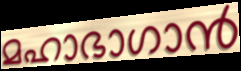
മഹാഭാഗാൻ